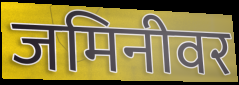
जमिनीवर